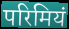
परिमियं